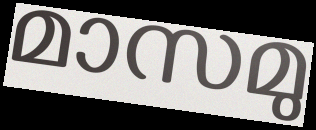
മാസമു